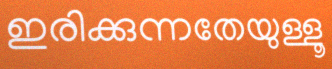
ഇരിക്കുന്നതേയുള്ളൂ